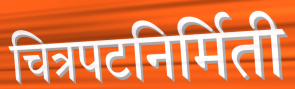
चित्रपटनिर्मिती